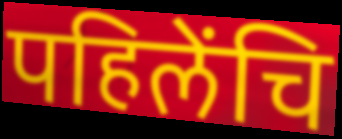
पहिलेंचि